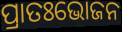
ପ୍ରାତଃଭୋଜନ